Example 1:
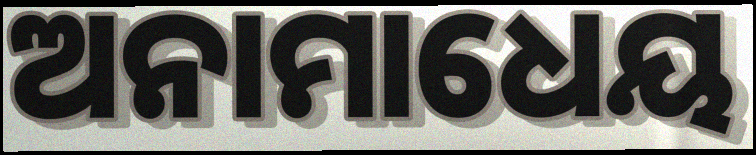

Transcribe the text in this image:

ଅନାମାଧେୟ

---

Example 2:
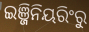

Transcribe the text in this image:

ଇଞ୍ଜିନିୟରିଂରୁ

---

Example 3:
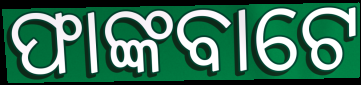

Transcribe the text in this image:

ଫାଙ୍କବାଟେ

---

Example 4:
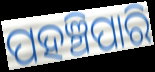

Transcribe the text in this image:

ପହଞ୍ଚିପାରି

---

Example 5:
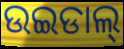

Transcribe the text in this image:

ଉଇଡାଲ୍